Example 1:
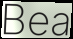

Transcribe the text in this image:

Bea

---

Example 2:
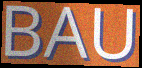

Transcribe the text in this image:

BAU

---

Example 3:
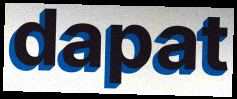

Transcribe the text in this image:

dapat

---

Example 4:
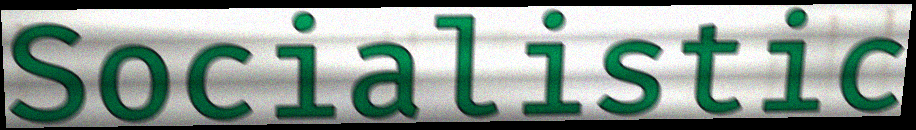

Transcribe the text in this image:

Socialistic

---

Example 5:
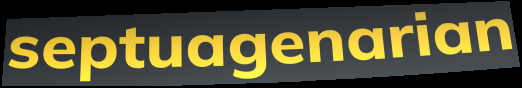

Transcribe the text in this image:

septuagenarian